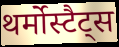
थर्मोस्टैट्स